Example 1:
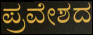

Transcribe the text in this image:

ಪ್ರವೇಶದ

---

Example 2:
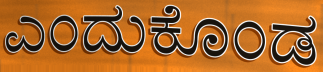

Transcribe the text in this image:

ಎಂದುಕೊಂಡ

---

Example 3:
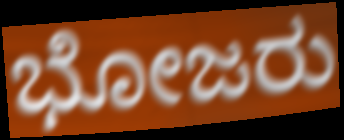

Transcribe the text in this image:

ಭೋಜರು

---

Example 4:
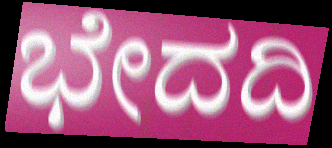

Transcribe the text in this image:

ಭೇದದಿ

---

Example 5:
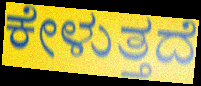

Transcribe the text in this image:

ಕೇಳುತ್ತದೆ